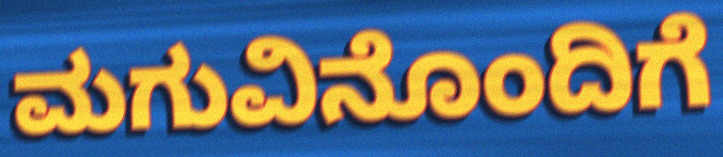
ಮಗುವಿನೊಂದಿಗೆ